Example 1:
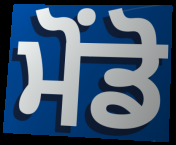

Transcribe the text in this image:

ਮੋਂਡੋ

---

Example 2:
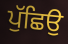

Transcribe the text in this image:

ਪੁੱਛਿਉ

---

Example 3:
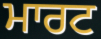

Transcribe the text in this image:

ਮਾਰਟ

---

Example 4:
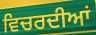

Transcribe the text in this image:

ਵਿਚਰਦੀਆਂ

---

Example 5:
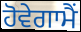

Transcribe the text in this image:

ਹੋਵੇਗਾਮੈਂ